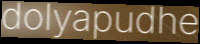
dolyapudhe